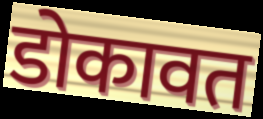
डोकावत